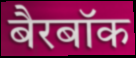
बैरबॉक